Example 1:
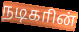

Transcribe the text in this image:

நடிகரின்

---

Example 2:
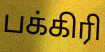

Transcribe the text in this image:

பக்கிரி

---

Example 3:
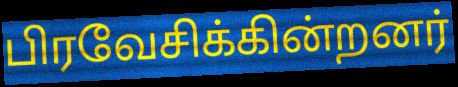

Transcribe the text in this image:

பிரவேசிக்கின்றனர்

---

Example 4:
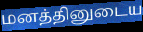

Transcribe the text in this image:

மனத்தினுடைய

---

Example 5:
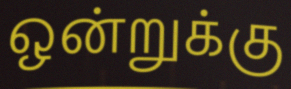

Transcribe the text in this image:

ஒன்றுக்கு